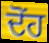
ਦੋਂਹ